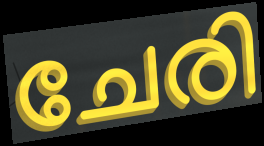
ചേരി